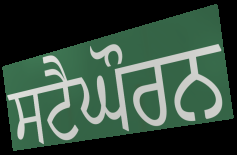
ਸਟੈਘੌਰਨ